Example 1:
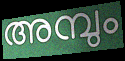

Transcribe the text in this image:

അമ്പും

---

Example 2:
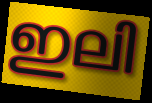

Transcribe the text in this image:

ഇലി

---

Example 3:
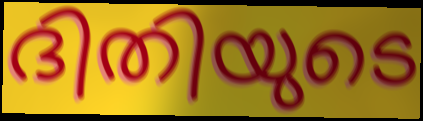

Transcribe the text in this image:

ദിതിയുടെ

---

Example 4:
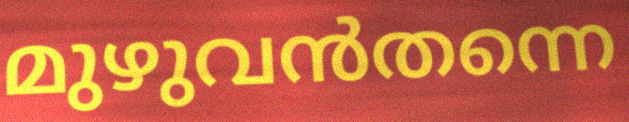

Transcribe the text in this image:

മുഴുവൻതന്നെ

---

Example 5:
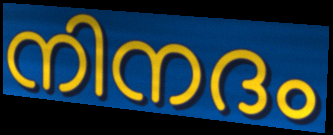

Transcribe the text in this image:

നിനദം